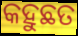
କହୁଛତ